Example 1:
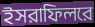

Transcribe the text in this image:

ইসরাফিলরে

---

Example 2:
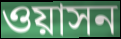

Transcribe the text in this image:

ওয়াসন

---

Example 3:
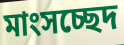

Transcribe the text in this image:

মাংসচ্ছেদ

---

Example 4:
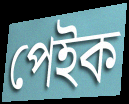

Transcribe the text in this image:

পেইক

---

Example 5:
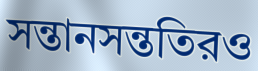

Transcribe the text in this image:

সন্তানসন্ততিরও